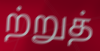
ற்றுத்